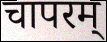
चापरम्